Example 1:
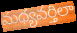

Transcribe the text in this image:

మధ్యవర్తిలా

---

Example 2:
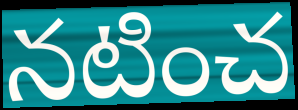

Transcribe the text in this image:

నటించ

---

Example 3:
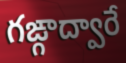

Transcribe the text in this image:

గఙ్గాద్వారే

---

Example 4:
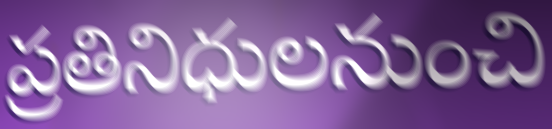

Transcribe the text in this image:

ప్రతినిధులనుంచి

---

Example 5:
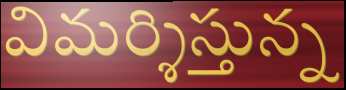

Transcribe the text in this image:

విమర్శిస్తున్న